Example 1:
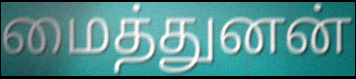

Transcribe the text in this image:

மைத்துனன்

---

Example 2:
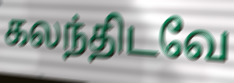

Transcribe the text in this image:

கலந்திடவே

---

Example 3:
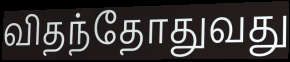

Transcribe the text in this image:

விதந்தோதுவது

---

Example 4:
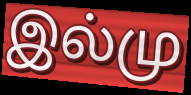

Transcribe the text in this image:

இல்மு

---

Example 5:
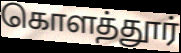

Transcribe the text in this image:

கொளத்தூர்